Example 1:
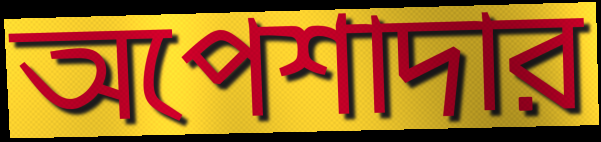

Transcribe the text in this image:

অপেশাদার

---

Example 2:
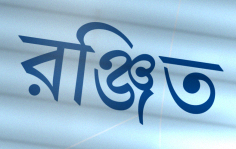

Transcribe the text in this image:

রঞ্জিত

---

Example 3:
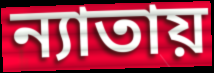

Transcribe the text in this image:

ন্যাতায়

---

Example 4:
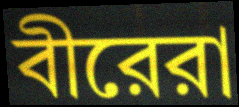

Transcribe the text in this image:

বীরেরা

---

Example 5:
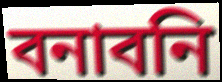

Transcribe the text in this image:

বনাবনি